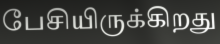
பேசியிருக்கிறது